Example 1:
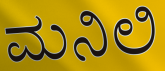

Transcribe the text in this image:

ಮನಿಲಿ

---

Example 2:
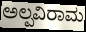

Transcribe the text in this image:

ಅಲ್ಪವಿರಾಮ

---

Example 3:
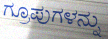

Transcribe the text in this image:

ಗ್ರೂಪುಗಳನ್ನು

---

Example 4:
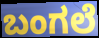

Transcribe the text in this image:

ಬಂಗಲೆ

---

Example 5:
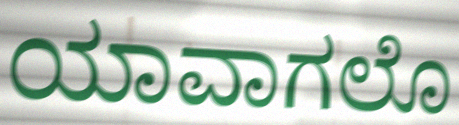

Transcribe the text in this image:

ಯಾವಾಗಲೊ